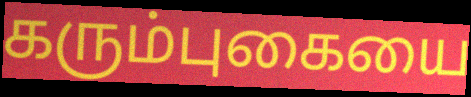
கரும்புகையை